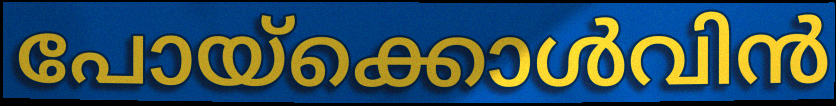
പോയ്ക്കൊൾവിൻ